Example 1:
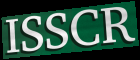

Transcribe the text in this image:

ISSCR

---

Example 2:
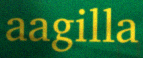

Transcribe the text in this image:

aagilla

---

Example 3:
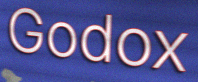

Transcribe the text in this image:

Godox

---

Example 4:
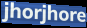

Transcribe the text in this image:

jhorjhore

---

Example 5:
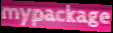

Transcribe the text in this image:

mypackage